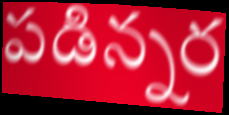
పడిన్నర